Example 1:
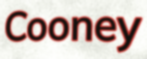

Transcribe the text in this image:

Cooney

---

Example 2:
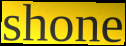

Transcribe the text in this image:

shone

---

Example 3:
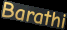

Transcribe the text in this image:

Barathi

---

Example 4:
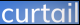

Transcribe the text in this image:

curtail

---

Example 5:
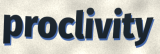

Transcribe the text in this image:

proclivity